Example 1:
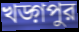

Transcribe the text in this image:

খড়্গপুর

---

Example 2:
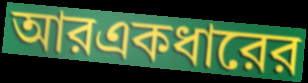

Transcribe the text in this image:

আরএকধারের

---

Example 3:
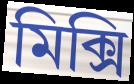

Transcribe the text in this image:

মিক্সি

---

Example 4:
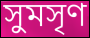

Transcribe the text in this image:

সুমসৃণ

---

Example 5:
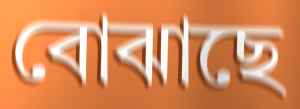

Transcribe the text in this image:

বোঝাছে